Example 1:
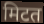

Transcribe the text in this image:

मिटत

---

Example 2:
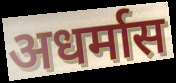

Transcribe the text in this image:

अधर्मास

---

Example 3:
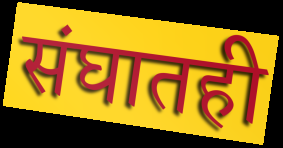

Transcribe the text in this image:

संघातही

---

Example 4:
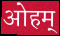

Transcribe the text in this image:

ओहम्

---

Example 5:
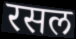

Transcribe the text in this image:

रसल